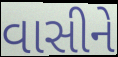
વાસીને